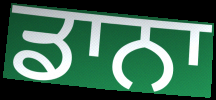
ਡਾਨਾ